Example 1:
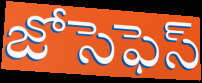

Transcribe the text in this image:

జోసెఫెస్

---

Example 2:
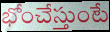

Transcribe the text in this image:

భోంచేస్తుంటే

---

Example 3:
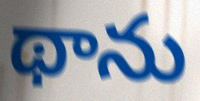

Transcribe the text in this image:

థాను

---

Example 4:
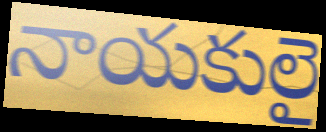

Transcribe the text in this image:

నాయకులై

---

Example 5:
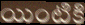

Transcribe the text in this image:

యింటికి